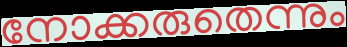
നോക്കരുതെന്നും